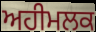
ਅਹੀਮਲਕ